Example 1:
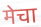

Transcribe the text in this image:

मेचा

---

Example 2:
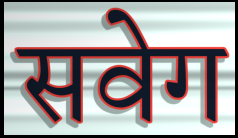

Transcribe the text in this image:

सवेग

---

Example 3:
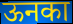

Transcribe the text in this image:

ऊनका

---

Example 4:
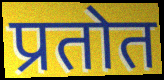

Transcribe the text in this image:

प्रतोत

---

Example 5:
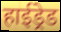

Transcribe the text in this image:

हाईड्रेड